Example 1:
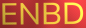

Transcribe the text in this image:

ENBD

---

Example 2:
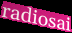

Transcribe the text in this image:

radiosai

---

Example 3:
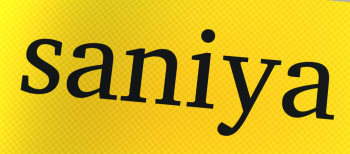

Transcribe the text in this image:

saniya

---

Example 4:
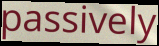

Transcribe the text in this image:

passively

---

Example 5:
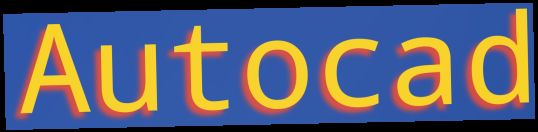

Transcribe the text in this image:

Autocad